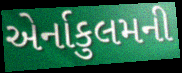
એર્નાકુલમની